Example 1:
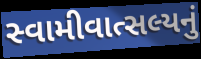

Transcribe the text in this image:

સ્વામીવાત્સલ્યનું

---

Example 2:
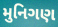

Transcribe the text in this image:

મુનિગણ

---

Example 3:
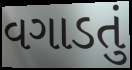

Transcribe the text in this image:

વગાડતું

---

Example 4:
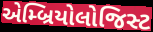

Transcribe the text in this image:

એમ્બ્રિયોલોજિસ્ટ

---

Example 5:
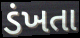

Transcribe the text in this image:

ડંખતા